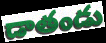
డాతండు